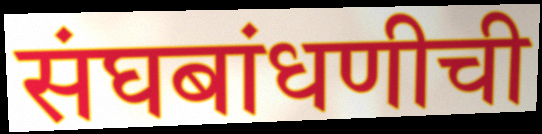
संघबांधणीची